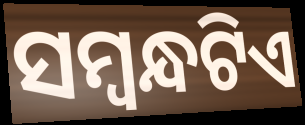
ସମ୍ୱନ୍ଧଟିଏ